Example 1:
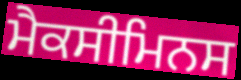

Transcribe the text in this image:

ਮੈਕਸੀਮਿਨਸ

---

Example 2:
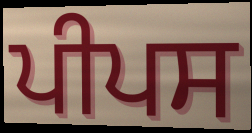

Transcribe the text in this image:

ਪੀਪਸ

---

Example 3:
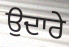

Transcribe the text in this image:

ਉਦਾਰੇ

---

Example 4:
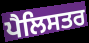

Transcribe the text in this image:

ਪੈਲਿਸਤਰ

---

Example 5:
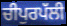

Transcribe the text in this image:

ਚੀਪੁਰਪੱਲੀ